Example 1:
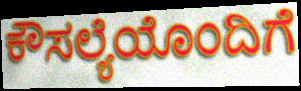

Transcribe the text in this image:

ಕೌಸಲ್ಯೆಯೊಂದಿಗೆ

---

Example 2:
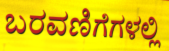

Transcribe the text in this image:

ಬರವಣಿಗೆಗಳಲ್ಲಿ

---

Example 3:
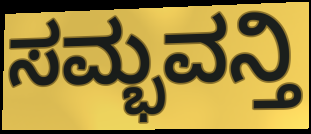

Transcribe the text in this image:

ಸಮ್ಭವನ್ತಿ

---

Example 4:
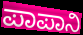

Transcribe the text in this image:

ಪಾಪಾನಿ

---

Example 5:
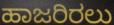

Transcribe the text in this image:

ಹಾಜರಿರಲು